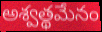
అశ్వత్థమేనం